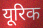
यूरिक